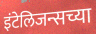
इंटेलिजन्सच्या